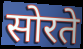
सोरते